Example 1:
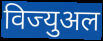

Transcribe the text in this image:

विज्युअल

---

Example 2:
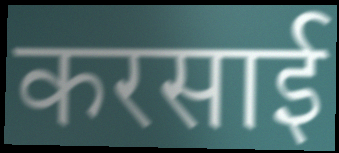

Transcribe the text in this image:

करसाई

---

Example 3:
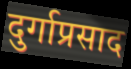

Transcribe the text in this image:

दुर्गाप्रसाद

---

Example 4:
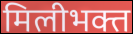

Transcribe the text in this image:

मिलीभक्त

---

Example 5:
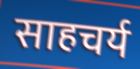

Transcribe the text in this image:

साहचर्य